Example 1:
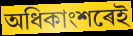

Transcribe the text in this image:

অধিকাংশৰেই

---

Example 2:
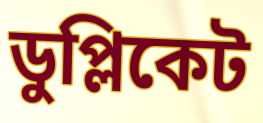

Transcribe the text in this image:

ডুপ্লিকেট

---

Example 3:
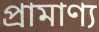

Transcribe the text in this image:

প্ৰামাণ্য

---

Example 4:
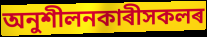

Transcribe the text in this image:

অনুশীলনকাৰীসকলৰ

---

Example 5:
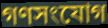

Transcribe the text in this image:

গণসংযোগ